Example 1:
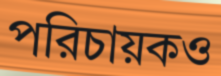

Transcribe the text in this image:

পরিচায়কও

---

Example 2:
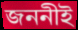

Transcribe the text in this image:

জননীই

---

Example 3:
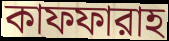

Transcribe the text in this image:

কাফফারাহ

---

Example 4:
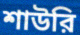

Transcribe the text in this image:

শাউরি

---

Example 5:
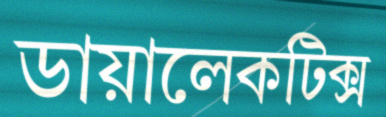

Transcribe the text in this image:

ডায়ালেকটিক্স